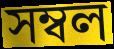
সম্বল